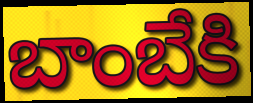
బాంబేకి